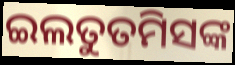
ଇଲତୁତମିସଙ୍କ